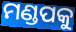
ମଣ୍ଡପକୁ